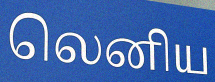
லெனிய